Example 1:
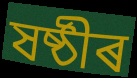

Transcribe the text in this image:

ষষ্ঠীৰ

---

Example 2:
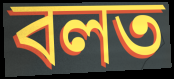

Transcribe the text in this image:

বলত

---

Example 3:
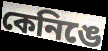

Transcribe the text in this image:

কেনিঙে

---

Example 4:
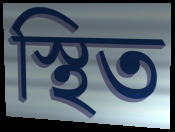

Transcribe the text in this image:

স্থিত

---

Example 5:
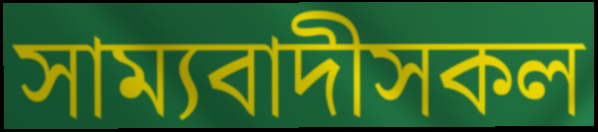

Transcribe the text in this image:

সাম্যবাদীসকল